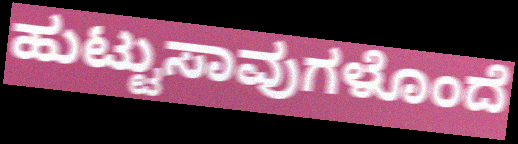
ಹುಟ್ಟುಸಾವುಗಳೊಂದೆ